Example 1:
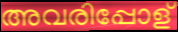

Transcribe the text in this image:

അവരിപ്പോള്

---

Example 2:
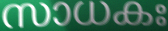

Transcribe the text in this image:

സാധകഃ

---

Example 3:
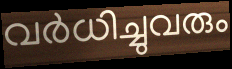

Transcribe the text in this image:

വർധിച്ചുവരും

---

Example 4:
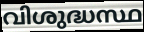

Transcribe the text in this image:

വിശുദ്ധസ്ഥ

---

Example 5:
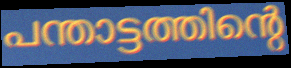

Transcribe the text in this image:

പന്താട്ടത്തിന്റെ